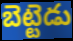
బెట్టెడు